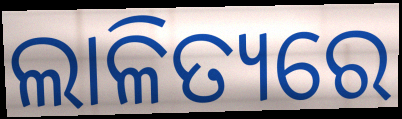
ଲାଳିତ୍ୟରେ